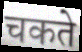
चकते